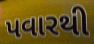
પવારથી